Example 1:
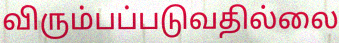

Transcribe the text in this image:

விரும்பப்படுவதில்லை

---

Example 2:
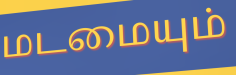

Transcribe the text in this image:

மடமையும்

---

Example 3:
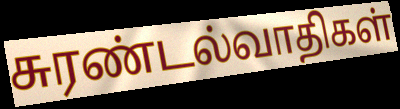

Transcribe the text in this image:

சுரண்டல்வாதிகள்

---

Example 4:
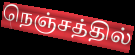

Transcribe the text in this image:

நெஞ்சத்தில்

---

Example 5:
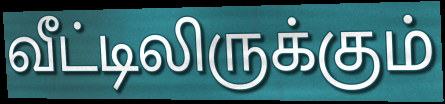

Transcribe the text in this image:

வீட்டிலிருக்கும்